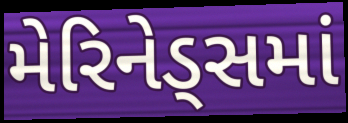
મેરિનેડ્સમાં